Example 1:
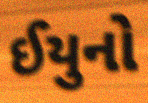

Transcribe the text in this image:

ઈયુનો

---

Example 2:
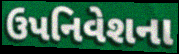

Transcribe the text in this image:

ઉપનિવેશના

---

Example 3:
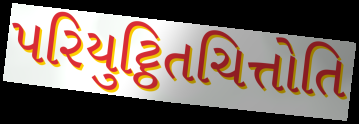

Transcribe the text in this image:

પરિયુટ્ઠિતચિત્તોતિ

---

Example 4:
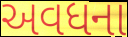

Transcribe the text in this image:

અવધના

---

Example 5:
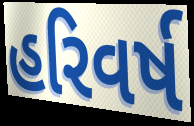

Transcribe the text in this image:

હરિવર્ષ